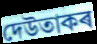
দেউতাকৰ